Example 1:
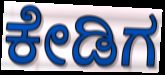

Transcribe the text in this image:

ಕೇಡಿಗ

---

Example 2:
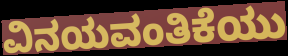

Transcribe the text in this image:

ವಿನಯವಂತಿಕೆಯು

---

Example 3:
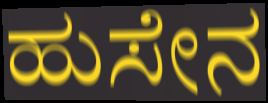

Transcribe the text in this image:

ಹುಸೇನ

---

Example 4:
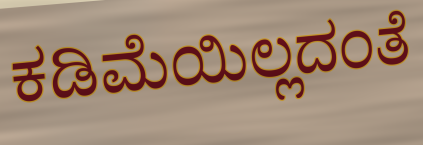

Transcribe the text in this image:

ಕಡಿಮೆಯಿಲ್ಲದಂತೆ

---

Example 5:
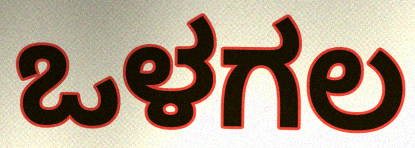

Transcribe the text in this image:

ಒಳಗಲ